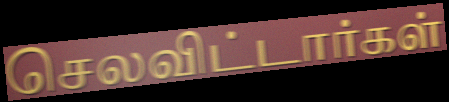
செலவிட்டார்கள்